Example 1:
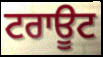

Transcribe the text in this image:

ਟਰਾਊਟ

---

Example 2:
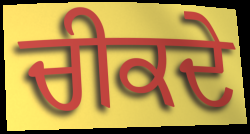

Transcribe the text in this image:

ਚੀਕਦੇ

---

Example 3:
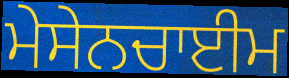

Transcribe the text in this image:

ਮੇਸੇਨਚਾਈਮ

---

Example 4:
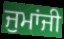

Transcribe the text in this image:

ਜੁਮਾਂਜੀ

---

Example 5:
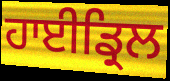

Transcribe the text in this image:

ਹਾਈਡ੍ਰਿਲ